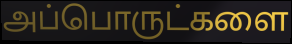
அப்பொருட்களை